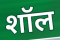
शॉल